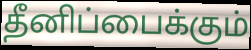
தீனிப்பைக்கும்